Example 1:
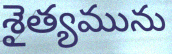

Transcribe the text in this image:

శైత్యమును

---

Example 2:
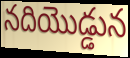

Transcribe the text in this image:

నదియొడ్డున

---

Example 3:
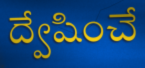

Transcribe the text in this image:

ద్వేషించే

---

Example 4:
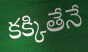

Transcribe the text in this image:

కక్కితేనే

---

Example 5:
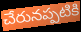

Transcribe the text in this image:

చేరునప్పటికి